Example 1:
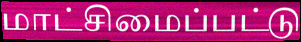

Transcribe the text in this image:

மாட்சிமைப்பட்டு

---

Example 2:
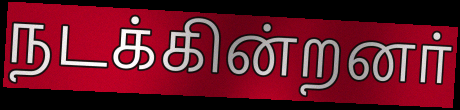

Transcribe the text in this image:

நடக்கின்றனர்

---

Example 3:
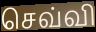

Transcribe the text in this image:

செவ்வி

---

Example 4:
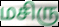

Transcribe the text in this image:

மசிரு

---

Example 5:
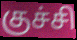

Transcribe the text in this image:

குச்சி